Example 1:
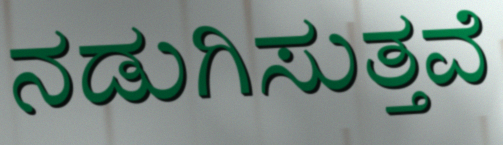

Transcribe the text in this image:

ನಡುಗಿಸುತ್ತವೆ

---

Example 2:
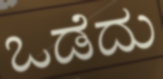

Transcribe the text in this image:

ಒಡೆದು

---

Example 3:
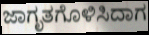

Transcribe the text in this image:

ಜಾಗೃತಗೊಳಿಸಿದಾಗ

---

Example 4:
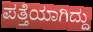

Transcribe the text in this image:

ಪತ್ತೆಯಾಗಿದ್ದು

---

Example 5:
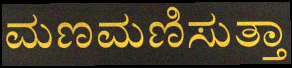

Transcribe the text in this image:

ಮಣಮಣಿಸುತ್ತಾ